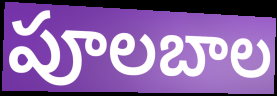
పూలబాల